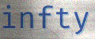
infty